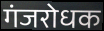
गंजरोधक